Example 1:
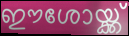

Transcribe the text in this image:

ഈശോയ്ക്ക്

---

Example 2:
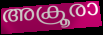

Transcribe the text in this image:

അക്രൂരാ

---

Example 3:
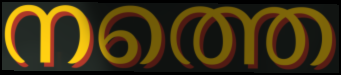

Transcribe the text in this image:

നത്തെ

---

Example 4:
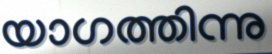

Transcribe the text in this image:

യാഗത്തിന്നു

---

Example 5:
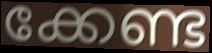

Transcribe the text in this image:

ക്കേണ്ട